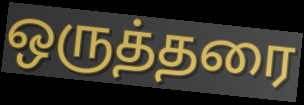
ஒருத்தரை